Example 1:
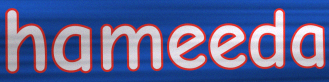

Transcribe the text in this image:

hameeda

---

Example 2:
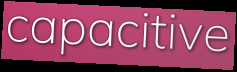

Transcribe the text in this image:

capacitive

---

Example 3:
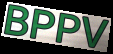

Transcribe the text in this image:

BPPV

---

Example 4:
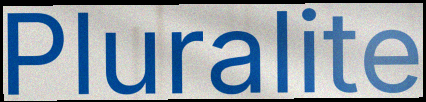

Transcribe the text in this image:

Pluralite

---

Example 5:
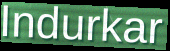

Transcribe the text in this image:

Indurkar